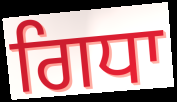
ਗਿਧਾ